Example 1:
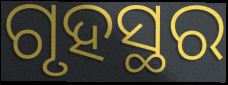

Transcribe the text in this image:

ଗୃହସ୍ଥର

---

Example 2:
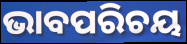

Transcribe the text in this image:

ଭାବପରିଚୟ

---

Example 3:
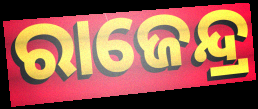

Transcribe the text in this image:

ରାଜେନ୍ଦ୍ର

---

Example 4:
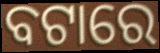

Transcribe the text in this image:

ବଟାରେ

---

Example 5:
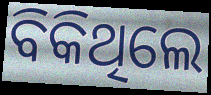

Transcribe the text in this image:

ବିକିଥିଲେ